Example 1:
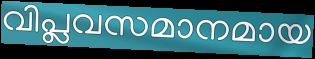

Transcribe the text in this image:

വിപ്ലവസമാനമായ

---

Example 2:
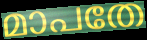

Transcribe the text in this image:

മാപതേ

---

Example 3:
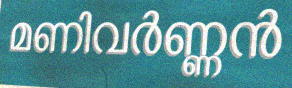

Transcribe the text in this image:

മണിവർണ്ണൻ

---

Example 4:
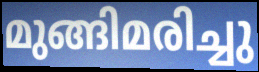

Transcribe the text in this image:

മുങ്ങിമരിച്ചു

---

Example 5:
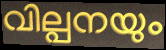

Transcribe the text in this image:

വില്പനയും